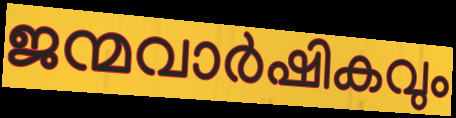
ജന്മവാർഷികവും